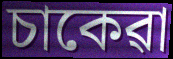
চাকেৱা